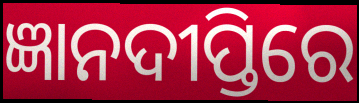
ଜ୍ଞାନଦୀପ୍ତିରେ